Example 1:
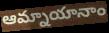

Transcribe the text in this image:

ఆమ్నాయానాం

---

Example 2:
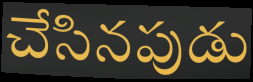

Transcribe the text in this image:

చేసినపుడు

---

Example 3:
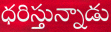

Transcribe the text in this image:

ధరిస్తున్నాడు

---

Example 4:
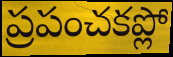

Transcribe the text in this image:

ప్రపంచకప్లో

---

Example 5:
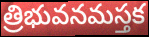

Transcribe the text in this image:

త్రిభువనమస్తక